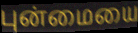
புன்மையை